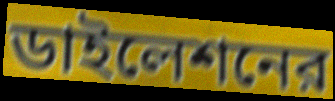
ডাইলেশনের